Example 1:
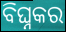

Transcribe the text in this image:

ବିଘ୍ନକର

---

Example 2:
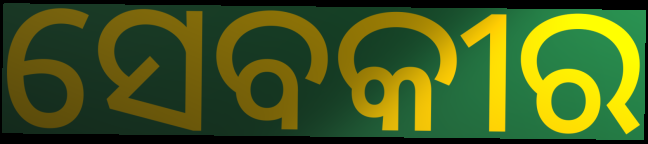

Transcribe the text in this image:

ସେବକୀର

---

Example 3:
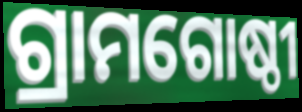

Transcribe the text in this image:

ଗ୍ରାମଗୋଷ୍ଠୀ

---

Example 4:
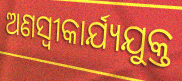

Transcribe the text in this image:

ଅଣସ୍ବୀକାର୍ଯ୍ୟଯୁକ୍ତ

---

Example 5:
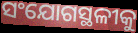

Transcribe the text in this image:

ସଂଯୋଗସ୍ଥଳୀକୁ